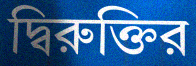
দ্বিরুক্তির